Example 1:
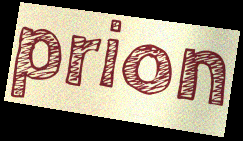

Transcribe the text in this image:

prion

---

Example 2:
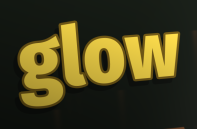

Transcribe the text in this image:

glow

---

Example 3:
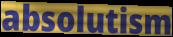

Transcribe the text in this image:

absolutism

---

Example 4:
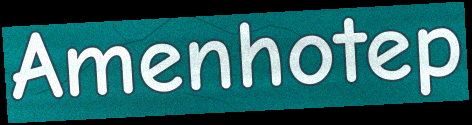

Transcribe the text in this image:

Amenhotep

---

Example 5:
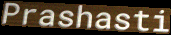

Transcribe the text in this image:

Prashasti